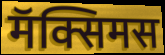
मॅक्सिमस